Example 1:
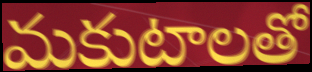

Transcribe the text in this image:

మకుటాలతో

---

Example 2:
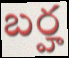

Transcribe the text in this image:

బర్హ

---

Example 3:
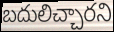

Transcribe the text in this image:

బదులిచ్చారని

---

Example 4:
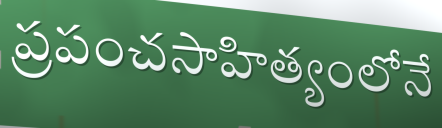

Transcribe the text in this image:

ప్రపంచసాహిత్యంలోనే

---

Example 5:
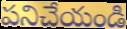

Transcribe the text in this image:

పనిచేయండి